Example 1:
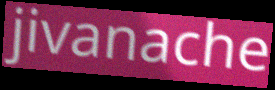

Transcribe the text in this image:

jivanache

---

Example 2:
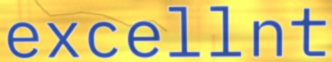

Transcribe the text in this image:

excellnt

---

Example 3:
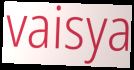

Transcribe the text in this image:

vaisya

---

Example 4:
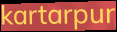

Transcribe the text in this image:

kartarpur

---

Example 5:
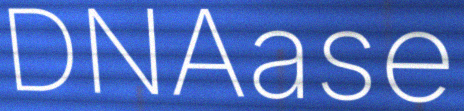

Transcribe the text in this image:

DNAase